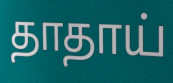
தாதாய்